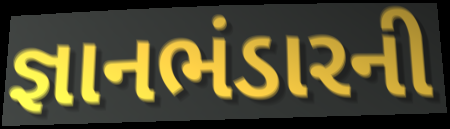
જ્ઞાનભંડારની